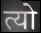
त्यो